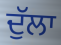
ਦੁੱਲਾ